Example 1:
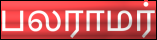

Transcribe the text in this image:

பலராமர்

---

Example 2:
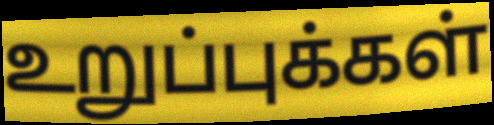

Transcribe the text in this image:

உறுப்புக்கள்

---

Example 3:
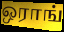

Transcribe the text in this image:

ஒராங்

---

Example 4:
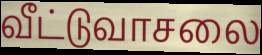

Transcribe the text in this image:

வீட்டுவாசலை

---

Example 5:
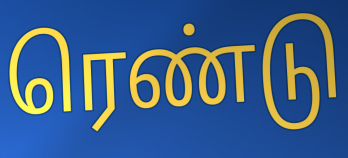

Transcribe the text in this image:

ரெண்டு